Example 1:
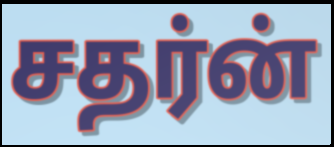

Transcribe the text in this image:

சதர்ன்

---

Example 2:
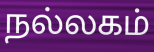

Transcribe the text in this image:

நல்லகம்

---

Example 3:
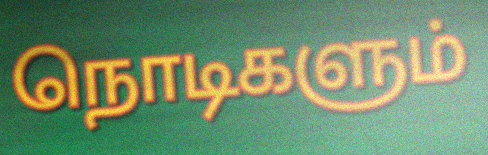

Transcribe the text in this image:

நொடிகளும்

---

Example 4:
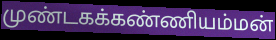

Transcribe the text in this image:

முண்டகக்கண்ணியம்மன்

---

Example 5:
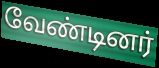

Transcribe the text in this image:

வேண்டினர்